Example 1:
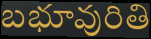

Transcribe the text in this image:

బభూవురితి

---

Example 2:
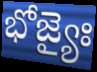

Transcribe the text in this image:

భోజ్యైః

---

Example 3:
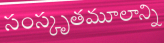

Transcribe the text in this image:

సంస్కృతమూలాన్ని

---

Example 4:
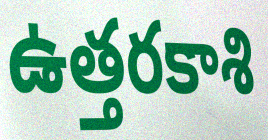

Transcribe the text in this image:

ఉత్తరకాశి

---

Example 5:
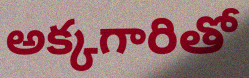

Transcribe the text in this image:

అక్కగారితో